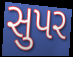
સુપર